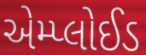
એમ્પ્લોઈડ